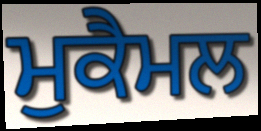
ਮੁਕੈਮਲ